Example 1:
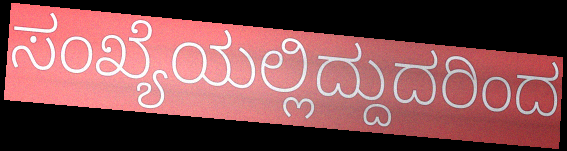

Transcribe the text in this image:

ಸಂಖ್ಯೆಯಲ್ಲಿದ್ದುದರಿಂದ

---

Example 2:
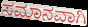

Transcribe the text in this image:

ಸಮಾನವಾಗಿ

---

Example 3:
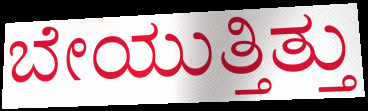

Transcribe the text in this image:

ಬೇಯುತ್ತಿತ್ತು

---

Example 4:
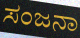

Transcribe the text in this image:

ಸಂಜನಾ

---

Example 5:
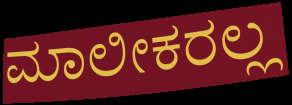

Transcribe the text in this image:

ಮಾಲೀಕರಲ್ಲ